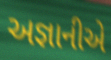
અજ્ઞાનીએ